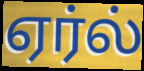
ஏர்ல்